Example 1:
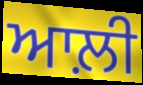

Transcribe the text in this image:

ਆਲ਼ੀ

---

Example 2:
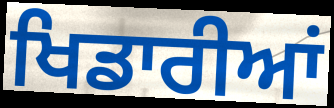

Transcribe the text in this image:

ਖਿਡਾਰੀਆਂ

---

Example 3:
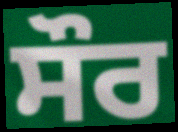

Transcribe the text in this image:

ਸੌਰ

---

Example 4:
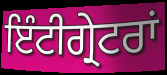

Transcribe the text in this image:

ਇੰਟੀਗ੍ਰੇਟਰਾਂ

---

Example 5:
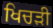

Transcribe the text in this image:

ਖਿਚੜੀ